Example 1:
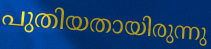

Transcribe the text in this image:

പുതിയതായിരുന്നു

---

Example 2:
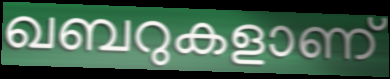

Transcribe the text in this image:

ഖബറുകളാണ്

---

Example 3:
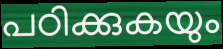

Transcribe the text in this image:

പഠിക്കുകയും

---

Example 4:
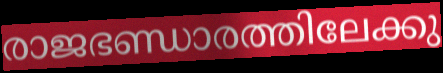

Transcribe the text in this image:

രാജഭണ്ഡാരത്തിലേക്കു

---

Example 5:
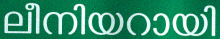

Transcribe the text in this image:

ലീനിയറായി